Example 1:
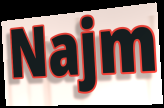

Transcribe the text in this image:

Najm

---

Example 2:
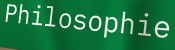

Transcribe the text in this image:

Philosophie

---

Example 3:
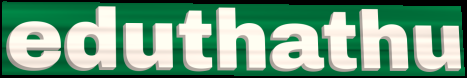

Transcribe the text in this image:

eduthathu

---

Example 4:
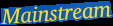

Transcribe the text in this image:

Mainstream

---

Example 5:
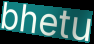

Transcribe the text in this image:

bhetu